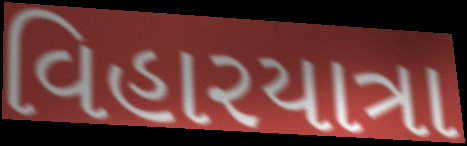
વિહારયાત્રા